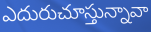
ఎదురుచూస్తున్నావా